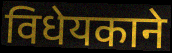
विधेयकाने